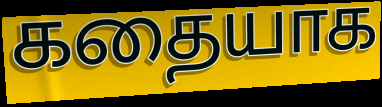
கதையாக